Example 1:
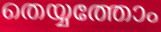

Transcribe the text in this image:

തെയ്യത്തോം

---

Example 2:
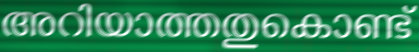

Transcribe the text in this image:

അറിയാത്തതുകൊണ്ട്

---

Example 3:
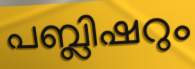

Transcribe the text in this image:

പബ്ലിഷറും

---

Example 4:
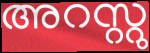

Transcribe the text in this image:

അറസ്റ്റു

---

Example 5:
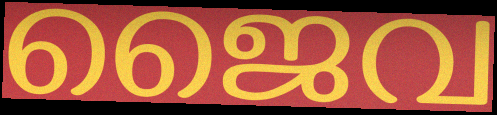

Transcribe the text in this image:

ജൈവ